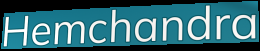
Hemchandra